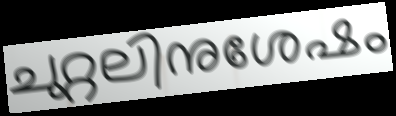
ചുറ്റലിനുശേഷം